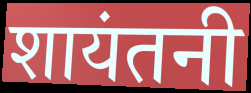
शायंतनी